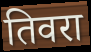
तिवरा